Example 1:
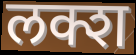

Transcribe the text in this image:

लक्श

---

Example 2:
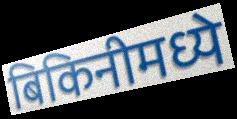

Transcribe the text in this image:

बिकिनीमध्ये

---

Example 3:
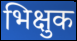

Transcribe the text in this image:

भिक्षुक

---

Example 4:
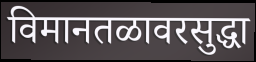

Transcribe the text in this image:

विमानतळावरसुद्धा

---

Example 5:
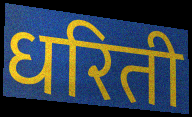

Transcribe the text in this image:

धरिती